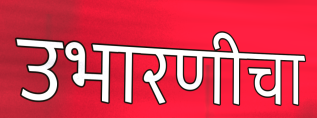
उभारणीचा